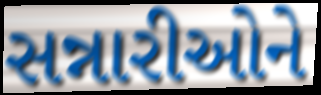
સન્નારીઓને